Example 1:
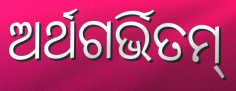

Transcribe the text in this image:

ଅର୍ଥଗର୍ଭିତମ୍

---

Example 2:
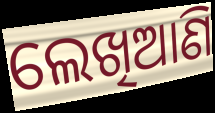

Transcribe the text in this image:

ଲେଖିଆଣି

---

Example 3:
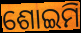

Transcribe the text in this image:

ଶୋଇମି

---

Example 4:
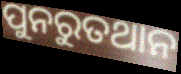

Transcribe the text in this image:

ପୁନରୁତଥାନ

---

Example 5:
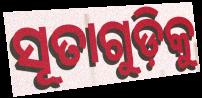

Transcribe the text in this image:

ସୂତାଗୁଡ଼ିକୁ